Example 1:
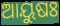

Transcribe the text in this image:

ଆୟୁଷଃ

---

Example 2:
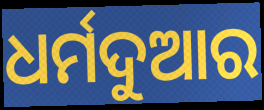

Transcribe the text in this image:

ଧର୍ମଦୁଆର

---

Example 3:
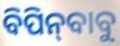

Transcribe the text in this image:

ବିପିନ୍‌ବାବୁ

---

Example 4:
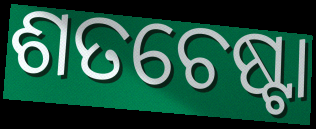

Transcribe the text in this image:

ଶତଚେଷ୍ଟା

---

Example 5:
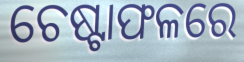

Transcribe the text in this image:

ଚେଷ୍ଟାଫଳରେ